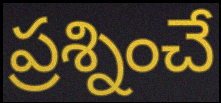
ప్రశ్నించే